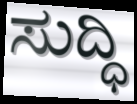
ಸುದ್ಧಿ